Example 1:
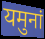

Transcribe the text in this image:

यमुनां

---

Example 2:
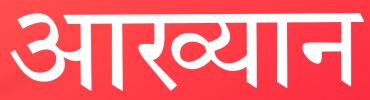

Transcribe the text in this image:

आख्यान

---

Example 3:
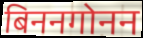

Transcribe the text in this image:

बिननगोनन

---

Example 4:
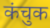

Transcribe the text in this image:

कंचुक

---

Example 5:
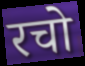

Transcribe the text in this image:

रचो